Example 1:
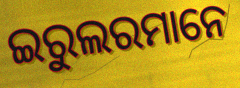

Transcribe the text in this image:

ଇରୁଲରମାନେ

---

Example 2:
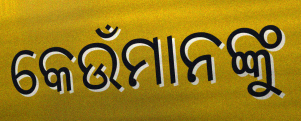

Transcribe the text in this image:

କେଉଁମାନଙ୍କୁ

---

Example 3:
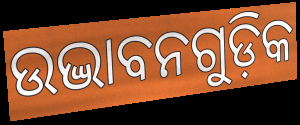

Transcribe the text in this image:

ଉଦ୍ଭାବନଗୁଡ଼ିକ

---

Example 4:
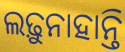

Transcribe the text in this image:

ଲଢ଼ୁନାହାନ୍ତି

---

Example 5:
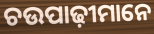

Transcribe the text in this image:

ଚଉପାଢ଼ୀମାନେ